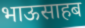
भाऊसाहब